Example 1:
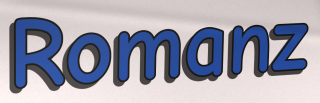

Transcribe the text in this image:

Romanz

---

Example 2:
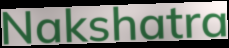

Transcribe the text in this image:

Nakshatra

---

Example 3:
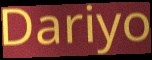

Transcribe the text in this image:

Dariyo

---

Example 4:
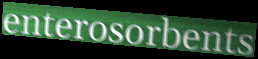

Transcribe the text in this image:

enterosorbents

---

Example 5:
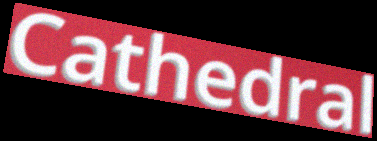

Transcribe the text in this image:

Cathedral